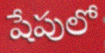
షేపులో